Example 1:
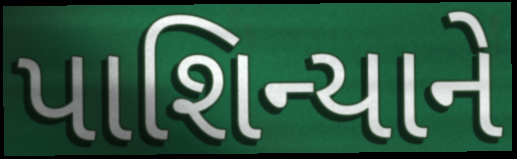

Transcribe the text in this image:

પાશિન્યાને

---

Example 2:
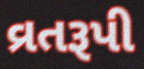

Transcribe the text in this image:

વ્રતરૂપી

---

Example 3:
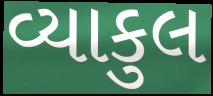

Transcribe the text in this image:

વ્યાકુલ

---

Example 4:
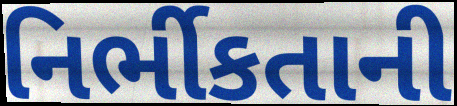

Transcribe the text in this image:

નિર્ભીકતાની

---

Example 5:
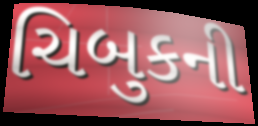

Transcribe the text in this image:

ચિબુકની